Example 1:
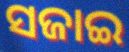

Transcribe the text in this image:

ସଜାଇ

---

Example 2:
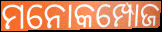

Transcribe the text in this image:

ମନୋକମ୍ପୋଜ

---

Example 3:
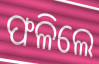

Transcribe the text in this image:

ଫଳିଲେ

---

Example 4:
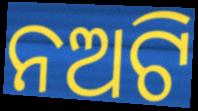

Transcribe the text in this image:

ନଅଟି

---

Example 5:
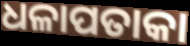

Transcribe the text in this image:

ଧଳାପତାକା